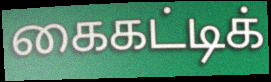
கைகட்டிக்